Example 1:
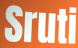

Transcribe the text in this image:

Sruti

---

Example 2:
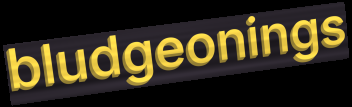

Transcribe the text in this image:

bludgeonings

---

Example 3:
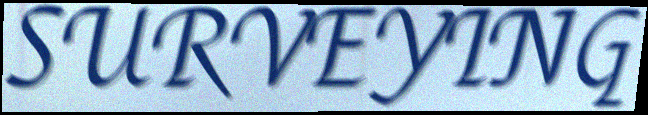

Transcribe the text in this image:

SURVEYING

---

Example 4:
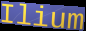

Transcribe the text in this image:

Ilium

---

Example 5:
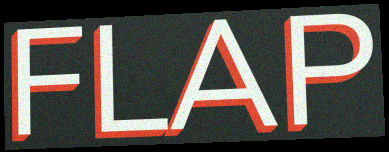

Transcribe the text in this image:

FLAP